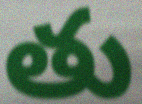
తు